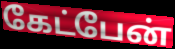
கேட்பேன்